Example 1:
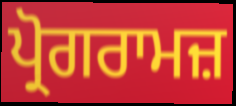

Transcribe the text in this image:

ਪ੍ਰੋਗਰਾਮਜ਼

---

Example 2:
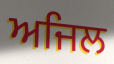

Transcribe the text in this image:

ਅਜਿਲ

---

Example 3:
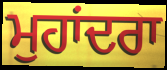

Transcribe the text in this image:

ਮੁਹਾਂਦਰਾ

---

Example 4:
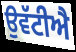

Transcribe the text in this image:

ਉਵੱਟੀਐ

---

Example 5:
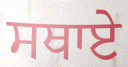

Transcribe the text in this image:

ਸਥਾਏ